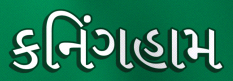
કનિંગહામ